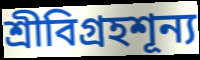
শ্রীবিগ্রহশূন্য